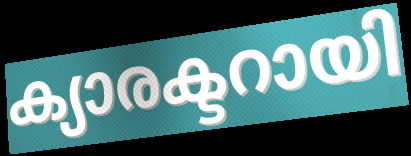
ക്യാരക്ടറായി